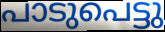
പാടുപെട്ടു